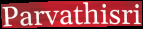
Parvathisri